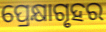
ପ୍ରେକ୍ଷାଗୃହର